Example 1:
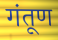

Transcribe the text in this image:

गंतूण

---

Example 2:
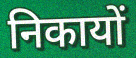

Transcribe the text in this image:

निकायों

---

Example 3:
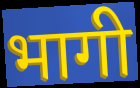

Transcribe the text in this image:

भागी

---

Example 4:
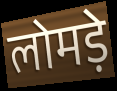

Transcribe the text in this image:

लोमड़े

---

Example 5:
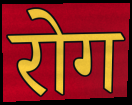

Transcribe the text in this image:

रोग